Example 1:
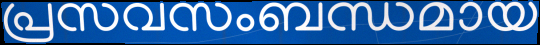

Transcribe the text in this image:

പ്രസവസംബന്ധമായ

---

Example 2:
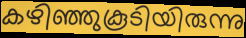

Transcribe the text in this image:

കഴിഞ്ഞുകൂടിയിരുന്നു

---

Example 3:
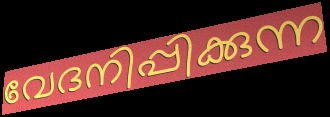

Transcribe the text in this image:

വേദനിപ്പിക്കുന്ന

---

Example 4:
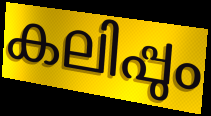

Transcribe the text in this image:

കലിപ്പും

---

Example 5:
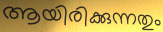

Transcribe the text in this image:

ആയിരിക്കുന്നതും